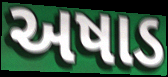
અષાડ